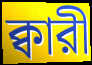
ক্বারী